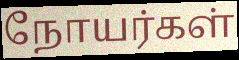
நோயர்கள்